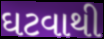
ઘટવાથી